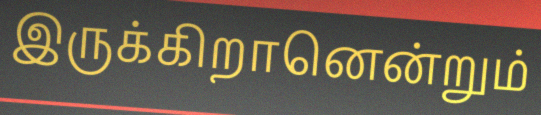
இருக்கிறானென்றும்